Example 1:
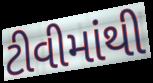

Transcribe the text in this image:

ટીવીમાંથી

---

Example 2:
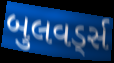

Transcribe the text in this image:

બુલવર્ડ્સ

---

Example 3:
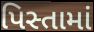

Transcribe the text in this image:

પિસ્તામાં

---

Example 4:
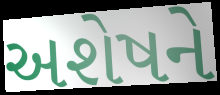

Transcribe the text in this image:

અશેષને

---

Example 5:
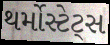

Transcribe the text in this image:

થર્મોસ્ટેટ્સ